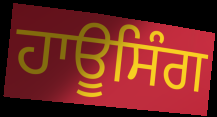
ਹਾਊਸਿੰਗ